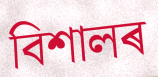
বিশালৰ